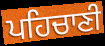
ਪਹਿਚਾਣੀ